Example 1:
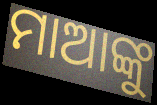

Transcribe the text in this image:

ମାଆଙ୍କୁ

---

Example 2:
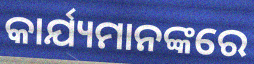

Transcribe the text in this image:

କାର୍ଯ୍ୟମାନଙ୍କରେ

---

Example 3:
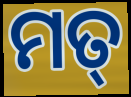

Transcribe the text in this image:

ମତ୍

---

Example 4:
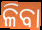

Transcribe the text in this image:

ଳିବା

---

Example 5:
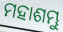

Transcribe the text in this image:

ମହାଶମ୍ଭୁ